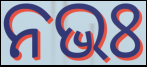
ନଭଃ